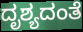
ದೃಶ್ಯದಂತೆ